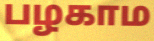
பழகாம